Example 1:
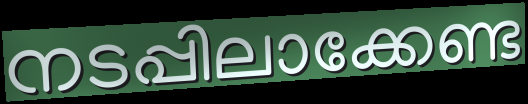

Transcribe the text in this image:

നടപ്പിലാക്കേണ്ട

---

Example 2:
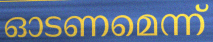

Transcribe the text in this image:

ഓടണമെന്ന്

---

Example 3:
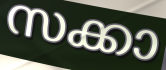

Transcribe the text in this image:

സക്കാ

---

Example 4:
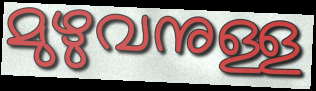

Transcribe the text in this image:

മുഴുവനുള്ള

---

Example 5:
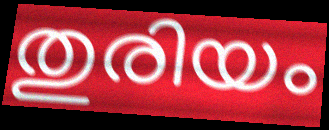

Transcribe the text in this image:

തുരിയം